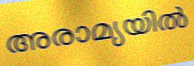
അരാമ്യയിൽ